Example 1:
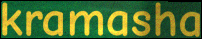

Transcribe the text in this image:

kramasha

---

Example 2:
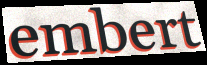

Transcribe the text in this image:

embert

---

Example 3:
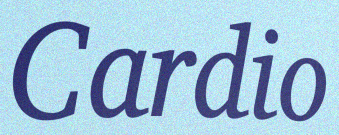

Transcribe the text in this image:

Cardio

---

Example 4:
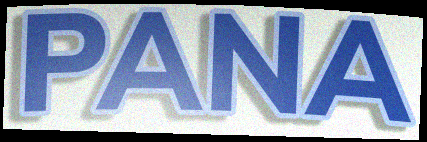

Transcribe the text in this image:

PANA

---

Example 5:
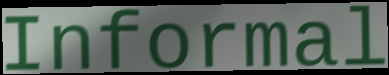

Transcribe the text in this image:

Informal